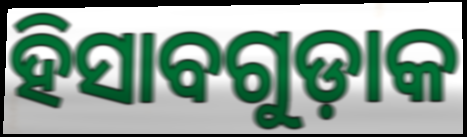
ହିସାବଗୁଡ଼ାକ